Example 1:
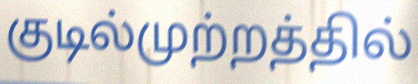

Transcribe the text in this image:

குடில்முற்றத்தில்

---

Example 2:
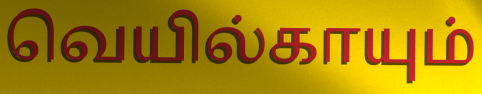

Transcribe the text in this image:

வெயில்காயும்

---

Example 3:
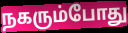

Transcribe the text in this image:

நகரும்போது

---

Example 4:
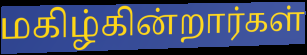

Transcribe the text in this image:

மகிழ்கின்றார்கள்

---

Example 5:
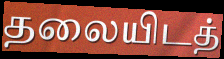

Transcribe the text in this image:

தலையிடத்